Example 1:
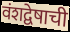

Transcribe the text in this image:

वंशद्वेषाची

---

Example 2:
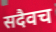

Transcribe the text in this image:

सदैवच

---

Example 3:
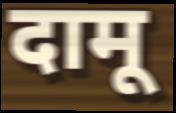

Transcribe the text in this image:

दामू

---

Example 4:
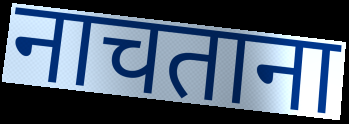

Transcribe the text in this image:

नाचताना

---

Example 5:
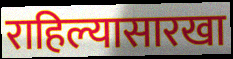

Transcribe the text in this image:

राहिल्यासारखा